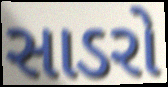
સાડરો